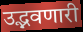
उद्भवणारी